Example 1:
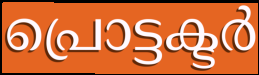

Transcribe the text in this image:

പ്രൊട്ടക്ടർ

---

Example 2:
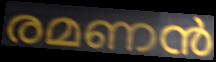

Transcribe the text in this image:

രമണൻ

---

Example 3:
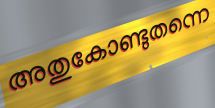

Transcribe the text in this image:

അതുകോണ്ടുതന്നെ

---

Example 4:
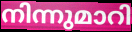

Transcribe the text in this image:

നിന്നുമാറി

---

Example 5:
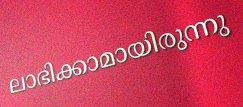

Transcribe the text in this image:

ലാഭിക്കാമായിരുന്നു